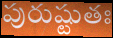
పురుష్టుతః